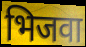
भिजवा